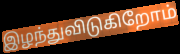
இழந்துவிடுகிறோம்